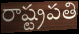
రాష్ట్రపతి